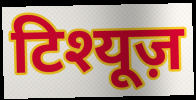
टिश्यूज़